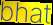
bhat